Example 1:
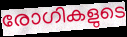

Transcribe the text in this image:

രോഗികളുടെ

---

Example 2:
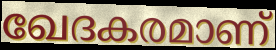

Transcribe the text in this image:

ഖേദകരമാണ്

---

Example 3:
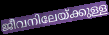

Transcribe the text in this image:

ജീവനിലേയ്ക്കുള്ള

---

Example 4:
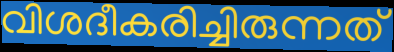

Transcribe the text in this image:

വിശദീകരിച്ചിരുന്നത്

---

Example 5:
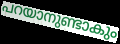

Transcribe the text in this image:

പറയാനുണ്ടാകും